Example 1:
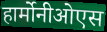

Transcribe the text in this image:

हार्मोनीओएस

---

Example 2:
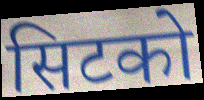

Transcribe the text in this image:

सिटको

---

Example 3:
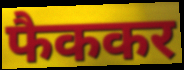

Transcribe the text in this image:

फैककर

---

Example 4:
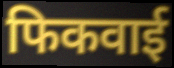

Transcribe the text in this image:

फिकवाई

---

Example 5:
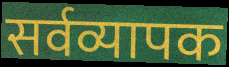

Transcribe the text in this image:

सर्वव्यापक